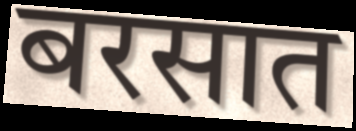
बरसात